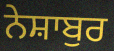
ਨੇਸ਼ਾਬੁਰ